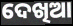
ଦେଖିଆ